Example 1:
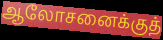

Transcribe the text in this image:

ஆலோசனைக்குத்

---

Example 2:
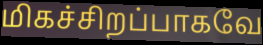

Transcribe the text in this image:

மிகச்சிறப்பாகவே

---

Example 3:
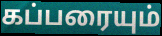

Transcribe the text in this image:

கப்பரையும்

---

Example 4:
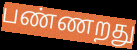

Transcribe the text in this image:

பண்ணறது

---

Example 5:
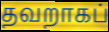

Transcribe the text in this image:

தவறாகப்